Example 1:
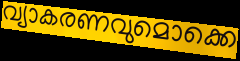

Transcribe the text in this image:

വ്യാകരണവുമൊക്കെ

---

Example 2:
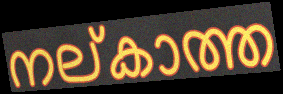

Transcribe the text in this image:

നല്കാത്ത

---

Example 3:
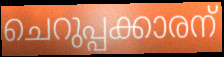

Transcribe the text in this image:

ചെറുപ്പക്കാരന്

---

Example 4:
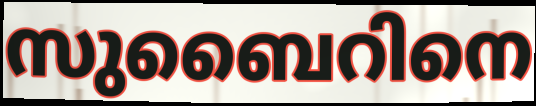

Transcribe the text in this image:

സുബൈറിനെ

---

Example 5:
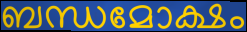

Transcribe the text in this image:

ബന്ധമോക്ഷം